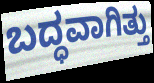
ಬದ್ಧವಾಗಿತ್ತು